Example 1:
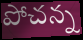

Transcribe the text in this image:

పోచన్న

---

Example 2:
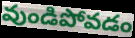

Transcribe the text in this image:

వుండిపోవడం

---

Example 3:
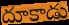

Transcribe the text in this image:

దూకాడు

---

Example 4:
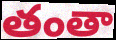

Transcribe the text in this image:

తంతా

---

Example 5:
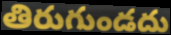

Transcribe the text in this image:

తిరుగుండదు